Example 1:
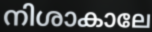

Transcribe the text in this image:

നിശാകാലേ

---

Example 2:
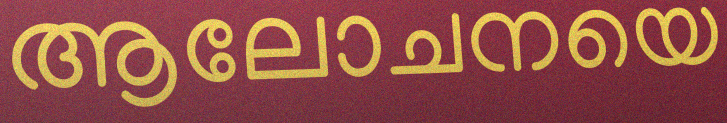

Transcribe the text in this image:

ആലോചനയെ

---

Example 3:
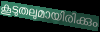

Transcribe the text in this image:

കൂടുതലുമായിരിക്കും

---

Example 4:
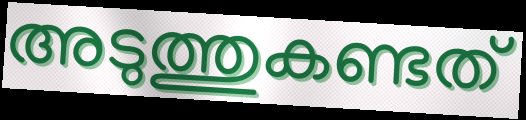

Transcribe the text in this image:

അടുത്തുകണ്ടത്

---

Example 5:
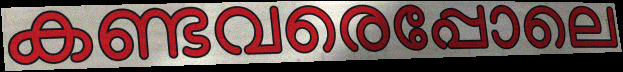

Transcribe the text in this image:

കണ്ടവരെപ്പോലെ